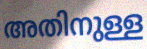
അതിനുള്ള